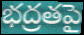
భద్రతపై